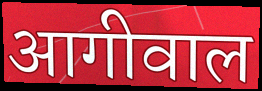
आगीवाल